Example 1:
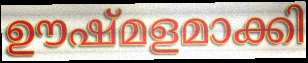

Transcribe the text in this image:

ഊഷ്മളമാക്കി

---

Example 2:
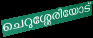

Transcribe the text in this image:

ചെറുശ്ശേരിയോട്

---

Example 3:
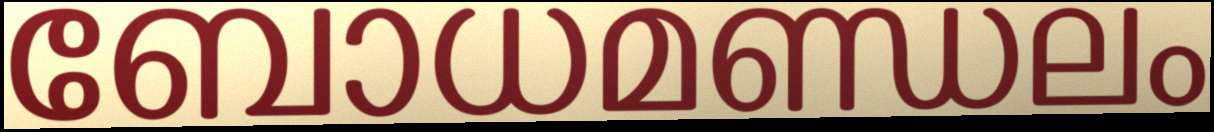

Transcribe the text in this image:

ബോധമണ്ഡലം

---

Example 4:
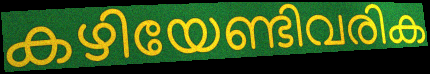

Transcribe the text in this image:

കഴിയേണ്ടിവരിക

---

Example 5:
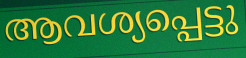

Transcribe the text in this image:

ആവശ്യപ്പെട്ടു